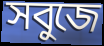
সবুজে